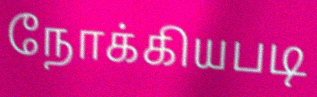
நோக்கியபடி